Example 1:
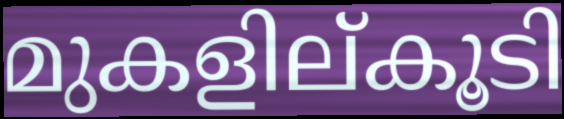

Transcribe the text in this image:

മുകളില്കൂടി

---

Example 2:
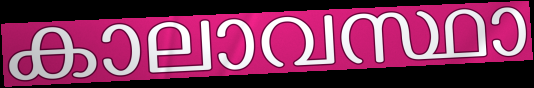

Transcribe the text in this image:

കാലാവസ്ഥാ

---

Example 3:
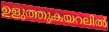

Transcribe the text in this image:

ഉളുത്തുകയറലിൽ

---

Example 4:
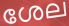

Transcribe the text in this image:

ശേല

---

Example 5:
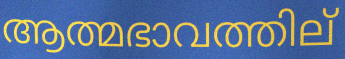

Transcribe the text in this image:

ആത്മഭാവത്തില്